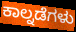
ಕಾಲ್ನಡೆಗಳು